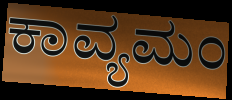
ಕಾವ್ಯಮಂ